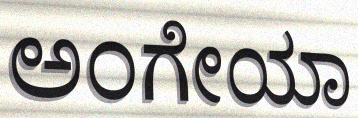
ಅಂಗೇಯಾ